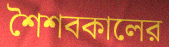
শৈশবকালের